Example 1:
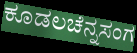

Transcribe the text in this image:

ಕೂಡಲಚೆನ್ನಸಂಗ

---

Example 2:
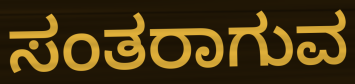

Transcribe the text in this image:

ಸಂತರಾಗುವ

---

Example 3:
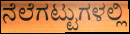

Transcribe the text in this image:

ನೆಲೆಗಟ್ಟುಗಳಲ್ಲಿ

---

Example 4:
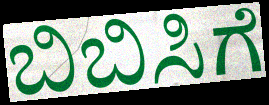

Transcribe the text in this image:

ಬಿಬಿಸಿಗೆ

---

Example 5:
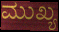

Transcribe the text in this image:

ಮುಖ್ಯ